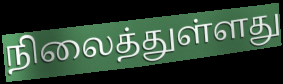
நிலைத்துள்ளது